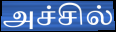
அச்சில்